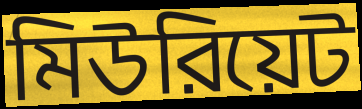
মিউরিয়েট